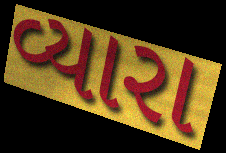
વ્યારા